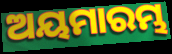
ଅୟମାରମ୍ଭ